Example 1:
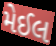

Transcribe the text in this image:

મેઈલ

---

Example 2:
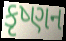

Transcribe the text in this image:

કૃષ્ણન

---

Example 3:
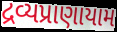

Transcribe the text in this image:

દ્રવ્યપ્રાણાયામ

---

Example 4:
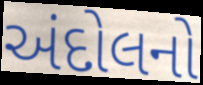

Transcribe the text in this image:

અંદોલનો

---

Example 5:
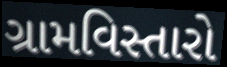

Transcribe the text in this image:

ગ્રામવિસ્તારો